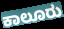
ಕಾಲೂರು